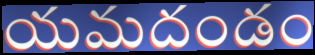
యమదండం